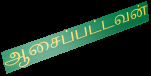
ஆசைப்பட்டவன்